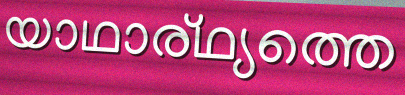
യാഥാര്ഥ്യത്തെ